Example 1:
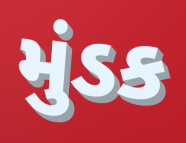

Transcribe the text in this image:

મુંડક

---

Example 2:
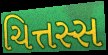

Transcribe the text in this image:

ચિત્તસ્સ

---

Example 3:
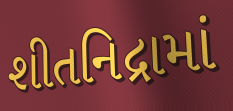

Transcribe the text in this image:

શીતનિદ્રામાં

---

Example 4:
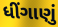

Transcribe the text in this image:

ધીંગાણું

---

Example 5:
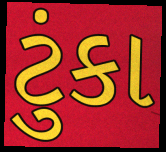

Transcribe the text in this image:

ટુંકા